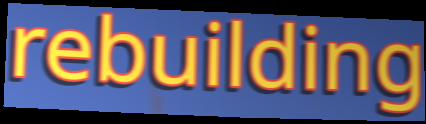
rebuilding